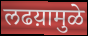
लढय़ामुळे